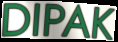
DIPAK